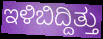
ಇಳಿಬಿದ್ದಿತ್ತು